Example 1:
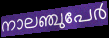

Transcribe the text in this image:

നാലഞ്ചുപേർ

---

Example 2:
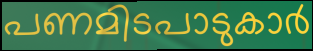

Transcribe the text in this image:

പണമിടപാടുകാർ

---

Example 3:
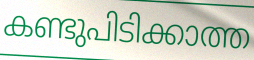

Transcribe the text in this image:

കണ്ടുപിടിക്കാത്ത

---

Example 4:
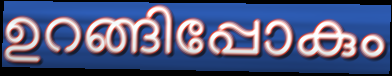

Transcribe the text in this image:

ഉറങ്ങിപ്പോകും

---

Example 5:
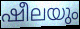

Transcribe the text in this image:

ഷീലയും